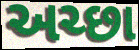
અચ્છા